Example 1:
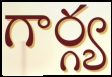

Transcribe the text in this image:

గార్గ్య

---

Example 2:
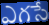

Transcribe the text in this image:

ఎగసే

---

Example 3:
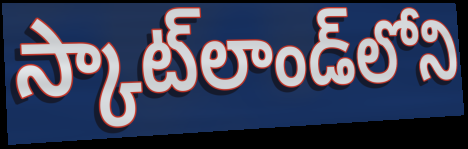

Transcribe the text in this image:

స్కాట్‌లాండ్‌లోని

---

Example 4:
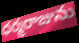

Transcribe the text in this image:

ధర్మరాజును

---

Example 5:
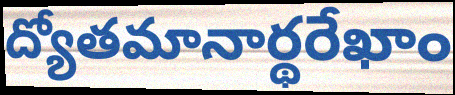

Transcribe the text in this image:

ద్యోతమానార్థరేఖాం